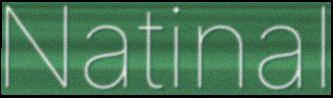
Natinal